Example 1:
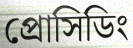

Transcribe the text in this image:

প্রোসিডিং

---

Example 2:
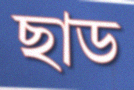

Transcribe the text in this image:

ছাড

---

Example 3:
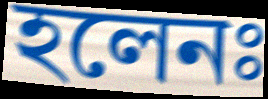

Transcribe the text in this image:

হলেনঃ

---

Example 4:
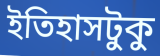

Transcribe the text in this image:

ইতিহাসটুকু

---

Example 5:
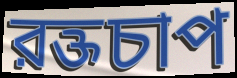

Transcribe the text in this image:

রক্তচাপ